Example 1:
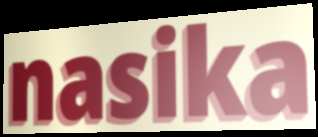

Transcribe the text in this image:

nasika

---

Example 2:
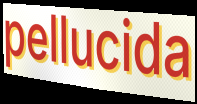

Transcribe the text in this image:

pellucida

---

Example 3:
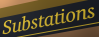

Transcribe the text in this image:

Substations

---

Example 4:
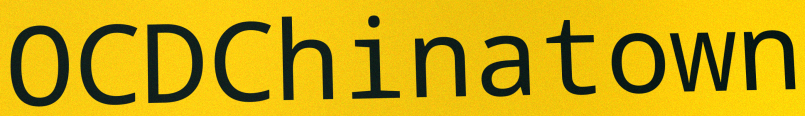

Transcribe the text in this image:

OCDChinatown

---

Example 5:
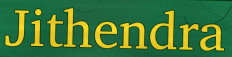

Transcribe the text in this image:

Jithendra